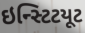
ઇન્સ્ટિટયૂટ